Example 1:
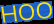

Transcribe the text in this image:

HOO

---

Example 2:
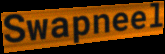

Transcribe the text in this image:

Swapneel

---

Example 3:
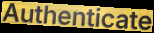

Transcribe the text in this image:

Authenticate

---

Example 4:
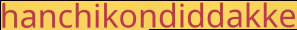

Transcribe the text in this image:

hanchikondiddakke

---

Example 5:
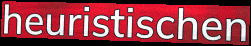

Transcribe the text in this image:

heuristischen